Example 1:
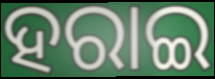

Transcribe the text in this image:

ହରାଇ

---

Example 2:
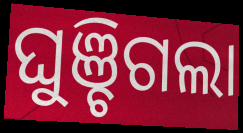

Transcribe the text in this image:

ଘୁଞ୍ଚିଗଲା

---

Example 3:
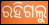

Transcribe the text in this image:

ରହିଗଲୁ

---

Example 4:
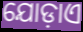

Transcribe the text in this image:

ଯୋଡ଼ାଏ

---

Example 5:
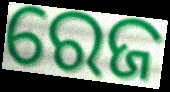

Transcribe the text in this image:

ରେଜ